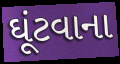
ઘૂંટવાના